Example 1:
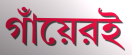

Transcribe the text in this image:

গাঁয়েরই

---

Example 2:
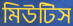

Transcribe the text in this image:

মিউটিস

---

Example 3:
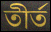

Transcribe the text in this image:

তীর্ত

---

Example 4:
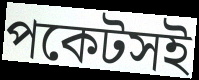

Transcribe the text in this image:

পকেটসই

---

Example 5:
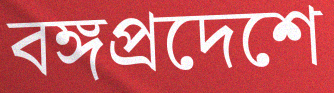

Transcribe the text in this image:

বঙ্গপ্রদেশে